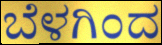
ಬೆಳಗಿಂದ